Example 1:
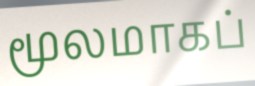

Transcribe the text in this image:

மூலமாகப்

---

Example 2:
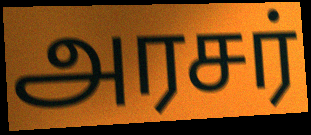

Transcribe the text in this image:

அரசர்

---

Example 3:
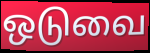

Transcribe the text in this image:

ஒடுவை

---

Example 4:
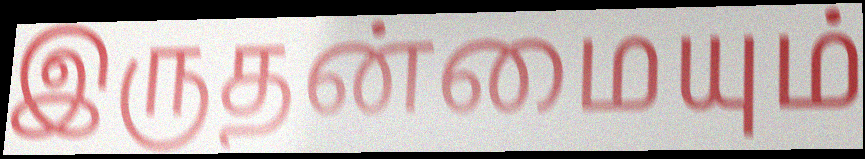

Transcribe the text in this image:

இருதன்மையும்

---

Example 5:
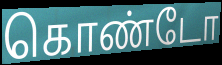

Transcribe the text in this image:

கொண்டோ